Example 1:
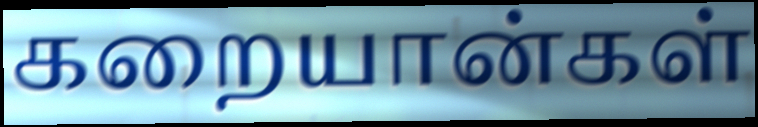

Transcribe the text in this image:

கறையான்கள்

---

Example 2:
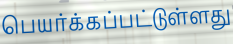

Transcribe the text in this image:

பெயர்க்கப்பட்டுள்ளது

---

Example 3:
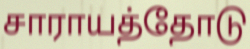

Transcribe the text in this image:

சாராயத்தோடு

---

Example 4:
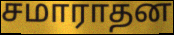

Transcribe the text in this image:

சமாராதன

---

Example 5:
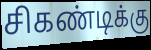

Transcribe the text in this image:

சிகண்டிக்கு